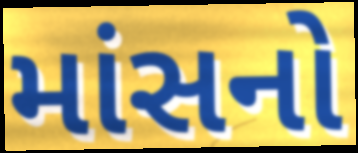
માંસનો